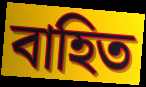
বাহিত